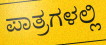
ಪಾತ್ರಗಳಲ್ಲಿ